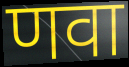
णवा